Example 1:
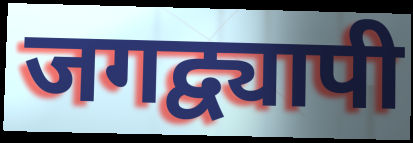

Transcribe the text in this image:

जगद्व्यापी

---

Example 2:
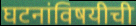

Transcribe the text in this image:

घटनांविषयीची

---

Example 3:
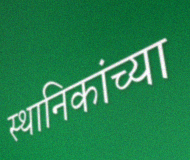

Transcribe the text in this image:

स्थानिकांच्या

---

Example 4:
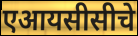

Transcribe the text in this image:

एआयसीसीचे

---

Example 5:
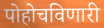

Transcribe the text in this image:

पोहोचविणारी